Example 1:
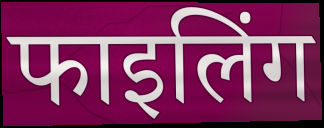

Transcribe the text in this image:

फाइलिंग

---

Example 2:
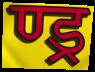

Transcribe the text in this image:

ण्ड्र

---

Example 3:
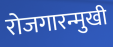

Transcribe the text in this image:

रोजगारन्मुखी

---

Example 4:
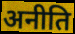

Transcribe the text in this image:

अनीति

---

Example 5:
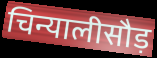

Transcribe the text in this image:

चिन्यालीसौड़